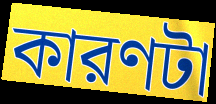
কারণটা